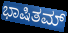
ಭಾಷಿತಮ್